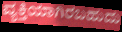
ವ್ಯಕ್ತಿಯಾಗಿರಬಹುದು